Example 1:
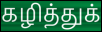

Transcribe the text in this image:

கழித்துக்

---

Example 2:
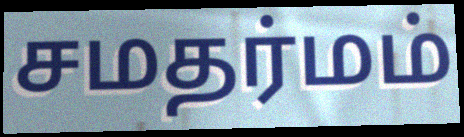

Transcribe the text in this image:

சமதர்மம்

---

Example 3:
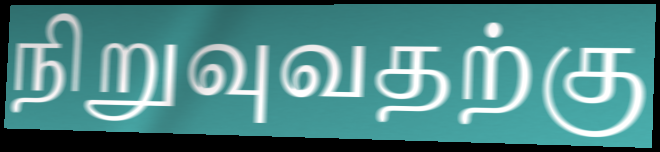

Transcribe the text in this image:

நிறுவுவதற்கு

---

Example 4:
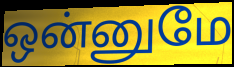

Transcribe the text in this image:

ஒன்னுமே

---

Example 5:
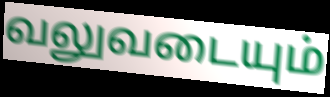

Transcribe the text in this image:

வலுவடையும்